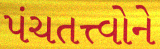
પંચતત્ત્વોને